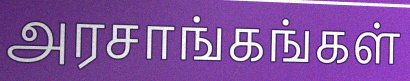
அரசாங்கங்கள்